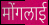
मोंगलाई